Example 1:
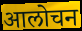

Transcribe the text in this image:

आलोचन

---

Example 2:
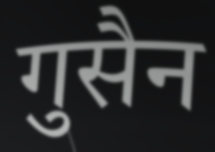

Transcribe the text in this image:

गुसैन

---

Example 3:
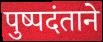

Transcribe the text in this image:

पुष्पदंताने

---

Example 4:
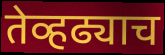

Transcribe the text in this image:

तेव्हढ्याच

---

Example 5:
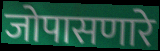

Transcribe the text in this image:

जोपासणारे